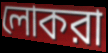
লোকরা